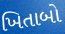
ખિતાબો